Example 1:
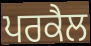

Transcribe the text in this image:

ਪਰਕੈਲ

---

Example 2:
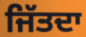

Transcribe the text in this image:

ਜਿੱਤਦਾ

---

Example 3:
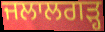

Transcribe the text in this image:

ਜਲਾਲਗੜ੍ਹ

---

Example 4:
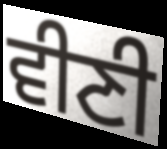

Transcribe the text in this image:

ਵੀਣੀ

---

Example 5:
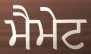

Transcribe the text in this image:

ਮੈਮੇਟ